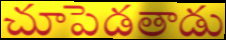
చూపెడతాడు